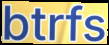
btrfs